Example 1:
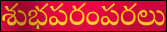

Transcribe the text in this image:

శుభపరంపరలు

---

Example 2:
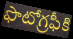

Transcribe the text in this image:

ఫొటోగ్రఫీకి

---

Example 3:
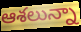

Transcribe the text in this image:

ఆశలున్నా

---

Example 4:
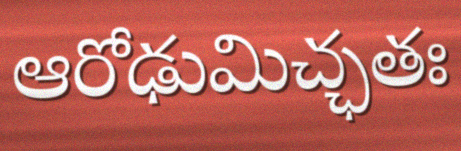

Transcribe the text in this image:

ఆరోఢుమిచ్ఛతః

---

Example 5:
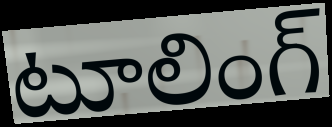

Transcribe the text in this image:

టూలింగ్